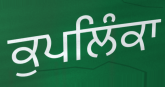
ਕੁਪਲਿੰਕਾ